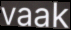
vaak